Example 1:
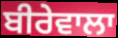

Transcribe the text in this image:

ਬੀਰੇਵਾਲਾ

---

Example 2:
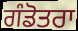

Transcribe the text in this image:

ਗੰਡੋਤਰਾ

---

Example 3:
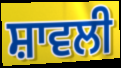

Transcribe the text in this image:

ਸ਼ਾਵਲੀ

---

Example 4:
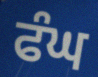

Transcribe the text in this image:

ਫੰਘ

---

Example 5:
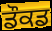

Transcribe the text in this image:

ਡੌਕਡ